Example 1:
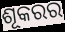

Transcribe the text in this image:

ଶୂକରର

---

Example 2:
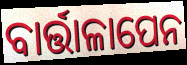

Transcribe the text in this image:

ବାର୍ତ୍ତାଳାପେନ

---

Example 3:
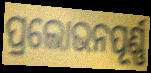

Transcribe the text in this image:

ପ୍ରଲୋଭନପୂର୍ଣ୍ଣ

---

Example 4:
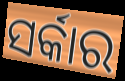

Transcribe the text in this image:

ସର୍କାର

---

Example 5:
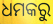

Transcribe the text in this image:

ଧମକରୁ